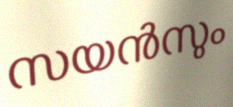
സയൻസും